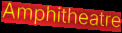
Amphitheatre